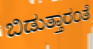
ಬಿಡುತ್ತಾರಂತೆ